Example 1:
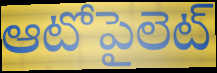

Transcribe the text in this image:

ఆటోపైలెట్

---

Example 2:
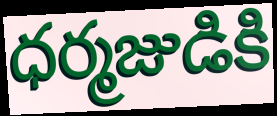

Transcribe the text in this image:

ధర్మజుడికి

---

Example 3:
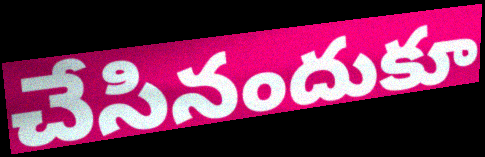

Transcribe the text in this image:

చేసినందుకూ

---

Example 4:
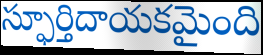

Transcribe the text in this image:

స్ఫూర్తిదాయకమైంది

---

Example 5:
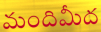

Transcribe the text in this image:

మందిమీద